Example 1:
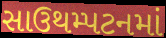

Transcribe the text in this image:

સાઉથમ્પટનમાં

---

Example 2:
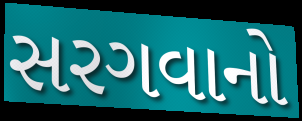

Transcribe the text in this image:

સરગવાનો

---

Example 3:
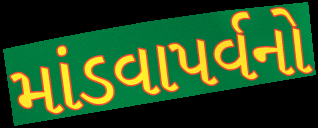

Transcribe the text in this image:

માંડવાપર્વનો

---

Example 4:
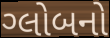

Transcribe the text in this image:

ગ્લોબનો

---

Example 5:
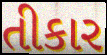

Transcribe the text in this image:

તીકાર